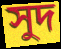
সুদ